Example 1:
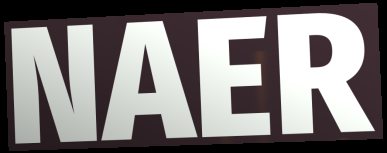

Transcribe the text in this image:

NAER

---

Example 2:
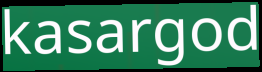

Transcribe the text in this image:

kasargod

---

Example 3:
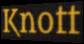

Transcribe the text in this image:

Knott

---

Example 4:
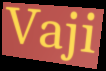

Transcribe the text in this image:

Vaji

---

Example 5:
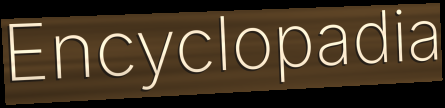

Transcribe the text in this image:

Encyclopadia